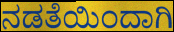
ನಡತೆಯಿಂದಾಗಿ